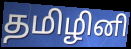
தமிழினி